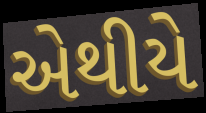
એથીયે